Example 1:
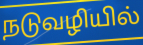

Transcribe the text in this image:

நடுவழியில்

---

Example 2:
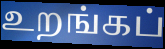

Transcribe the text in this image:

உறங்கப்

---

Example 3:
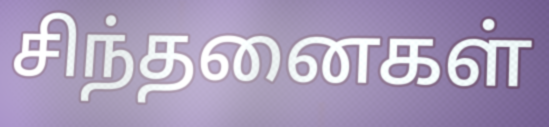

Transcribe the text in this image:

சிந்தனைகள்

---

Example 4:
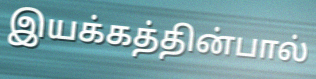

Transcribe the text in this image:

இயக்கத்தின்பால்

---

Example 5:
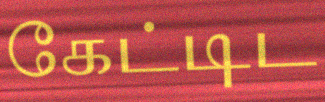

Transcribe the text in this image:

கேட்டிட